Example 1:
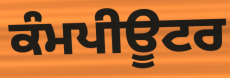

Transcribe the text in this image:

ਕੰਮਪੀਊਟਰ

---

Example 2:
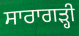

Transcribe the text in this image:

ਸਾਰਾਗੜ੍ਹੀ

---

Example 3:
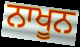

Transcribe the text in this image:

ਨਾਖੂਨ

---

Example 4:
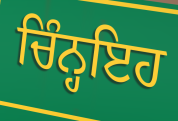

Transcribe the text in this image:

ਚਿੰਨ੍ਹਇਹ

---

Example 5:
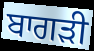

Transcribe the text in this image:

ਬਾਗੜੀ